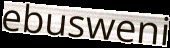
ebusweni